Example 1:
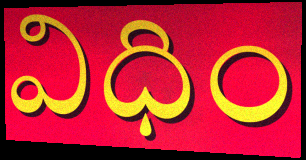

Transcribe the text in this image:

విధిం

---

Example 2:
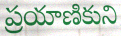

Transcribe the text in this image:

ప్రయాణికుని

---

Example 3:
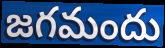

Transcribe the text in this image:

జగమందు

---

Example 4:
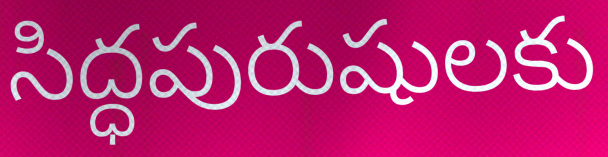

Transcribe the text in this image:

సిద్ధపురుషులకు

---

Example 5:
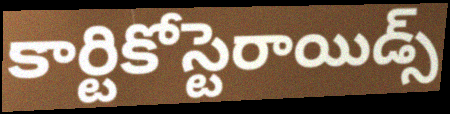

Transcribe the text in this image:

కార్టికోస్టెరాయిడ్స్